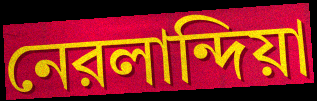
নেরলান্দিয়া